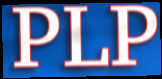
PLP